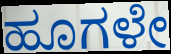
ಹೂಗಳೇ